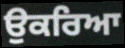
ਉਕਰਿਆ